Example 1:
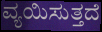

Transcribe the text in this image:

ವ್ಯಯಿಸುತ್ತದೆ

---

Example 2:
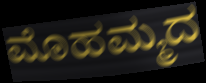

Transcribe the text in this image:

ಮೊಹಮ್ಮದ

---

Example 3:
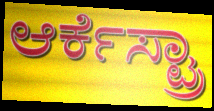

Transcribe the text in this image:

ಆರ್ಕೆಸ್ಟ್ರಾ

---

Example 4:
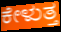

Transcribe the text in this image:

ಕೇಳುತ್ತ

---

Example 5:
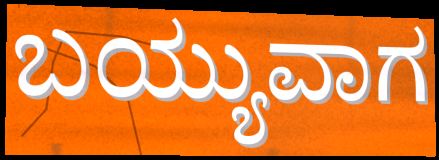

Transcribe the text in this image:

ಬಯ್ಯುವಾಗ